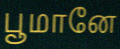
பூமானே